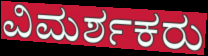
ವಿಮರ್ಶಕರು